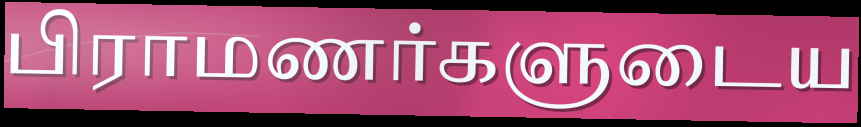
பிராமணர்களுடைய